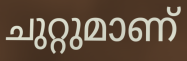
ചുറ്റുമാണ്